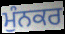
ਮੁੰਨਕਰ